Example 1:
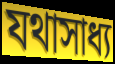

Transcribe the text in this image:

যথাসাধ্য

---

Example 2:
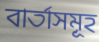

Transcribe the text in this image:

বাৰ্তাসমূহ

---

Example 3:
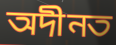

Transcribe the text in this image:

অদীনত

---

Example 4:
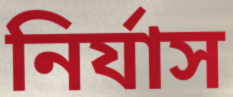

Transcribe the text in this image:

নিৰ্যাস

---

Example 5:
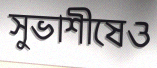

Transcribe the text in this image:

সুভাশীষেও